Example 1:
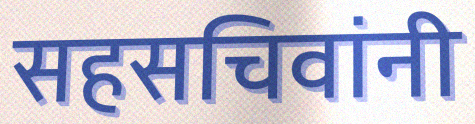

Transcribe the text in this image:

सहसचिवांनी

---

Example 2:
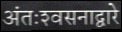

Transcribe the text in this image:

अंतःश्वसनाद्वारे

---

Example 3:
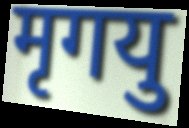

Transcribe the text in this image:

मृगयु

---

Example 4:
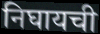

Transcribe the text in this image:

निघायची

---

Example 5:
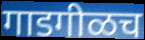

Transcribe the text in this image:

गाडगीळच